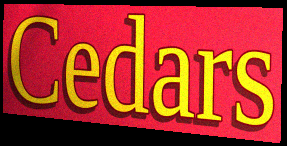
Cedars